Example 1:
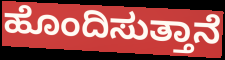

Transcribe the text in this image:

ಹೊಂದಿಸುತ್ತಾನೆ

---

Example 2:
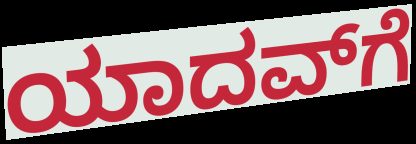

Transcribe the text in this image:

ಯಾದವ್‌ಗೆ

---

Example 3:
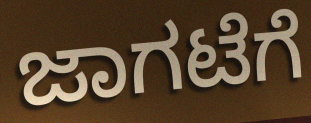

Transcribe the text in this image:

ಜಾಗಟೆಗೆ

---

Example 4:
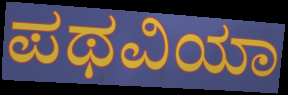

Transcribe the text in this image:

ಪಥವಿಯಾ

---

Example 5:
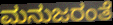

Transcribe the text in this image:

ಮನುಜರಂತೆ